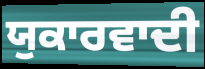
ਯੁਕਾਰਵਾਦੀ